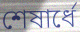
শেষার্ধে